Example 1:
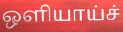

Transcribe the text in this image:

ஒளியாய்ச்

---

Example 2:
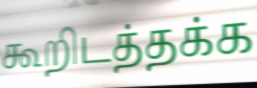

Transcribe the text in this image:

கூறிடத்தக்க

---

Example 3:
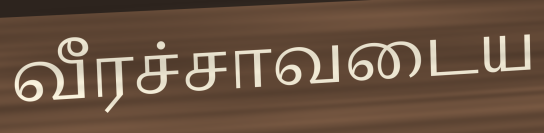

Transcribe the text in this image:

வீரச்சாவடைய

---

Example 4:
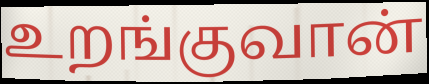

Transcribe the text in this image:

உறங்குவான்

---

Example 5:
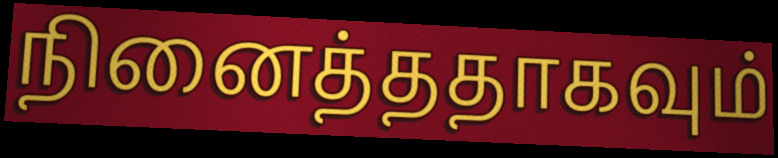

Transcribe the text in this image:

நினைத்ததாகவும்